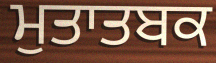
ਮੁਤਾਤਬਕ